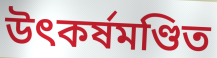
উৎকর্ষমণ্ডিত